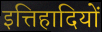
इत्तिहादियों